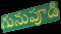
గునుపూడి